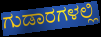
ಗುಡಾರಗಳಲ್ಲಿ